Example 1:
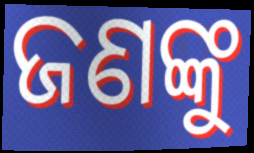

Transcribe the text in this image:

ଜଣଙ୍କୁ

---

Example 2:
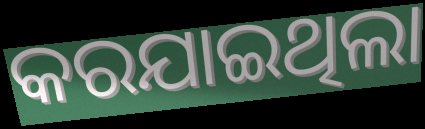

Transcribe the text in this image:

କରଯାଇଥିଲା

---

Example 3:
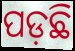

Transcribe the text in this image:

ପଡ଼ଛି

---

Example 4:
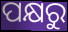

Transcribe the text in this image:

ପକ୍ଷରୁ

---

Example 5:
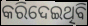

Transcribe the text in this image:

କରିଦେଇଥିବି